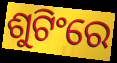
ଶୁଟିଂରେ